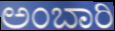
ಅಂಬಾರಿ